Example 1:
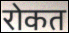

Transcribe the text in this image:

रोकत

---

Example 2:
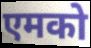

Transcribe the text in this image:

एमको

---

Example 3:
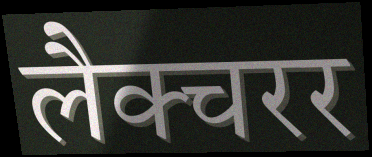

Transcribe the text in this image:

लैक्चरर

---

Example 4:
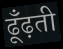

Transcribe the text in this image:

ढूँढ़ती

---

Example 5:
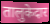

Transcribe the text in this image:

तालुकेदार